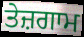
ਤੇਜ਼ਗਾਮ